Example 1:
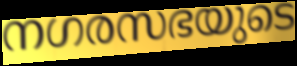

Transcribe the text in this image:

നഗരസഭയുടെ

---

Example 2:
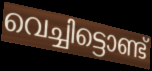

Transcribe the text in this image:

വെച്ചിട്ടൊണ്ട്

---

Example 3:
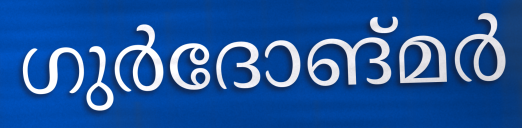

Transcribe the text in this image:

ഗുർദോങ്മർ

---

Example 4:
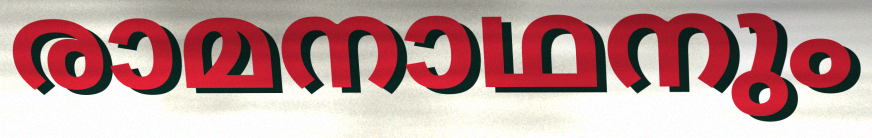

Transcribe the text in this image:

രാമനാഥനും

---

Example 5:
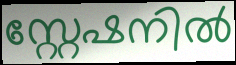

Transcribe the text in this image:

സ്റ്റേഷനിൽ